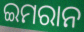
ଇମରାନ